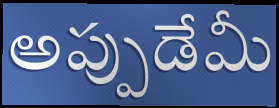
అప్పుడేమీ